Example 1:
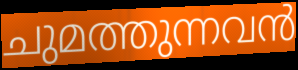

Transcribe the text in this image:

ചുമത്തുന്നവൻ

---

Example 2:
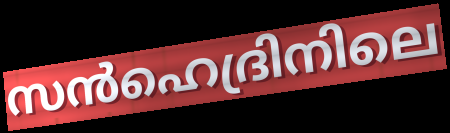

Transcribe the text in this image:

സൻഹെദ്രിനിലെ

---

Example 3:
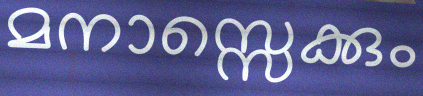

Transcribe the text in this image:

മനാസ്സെക്കും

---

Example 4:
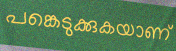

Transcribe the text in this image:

പങ്കെടുക്കുകയാണ്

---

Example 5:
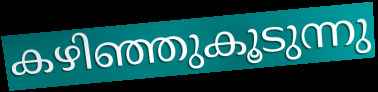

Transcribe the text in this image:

കഴിഞ്ഞുകൂടുന്നു